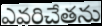
ఎవరిచేతను